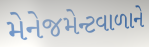
મેનેજમેન્ટવાળાને